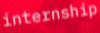
internship